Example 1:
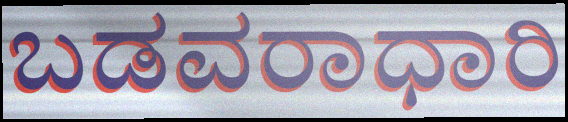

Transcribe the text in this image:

ಬಡವರಾಧಾರಿ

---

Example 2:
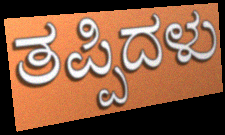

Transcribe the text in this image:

ತಪ್ಪಿದಳು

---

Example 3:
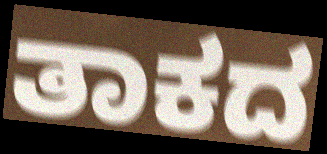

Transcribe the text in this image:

ತಾಕದ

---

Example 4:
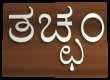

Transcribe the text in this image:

ತಚ್ಛಂ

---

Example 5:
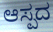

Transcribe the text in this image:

ಆಸ್ಪದ